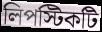
লিপস্টিকটি